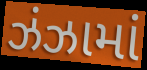
ઝંઝામાં